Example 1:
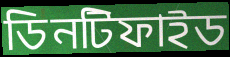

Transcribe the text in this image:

ডিনটিফাইড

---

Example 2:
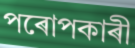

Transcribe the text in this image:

পৰোপকাৰী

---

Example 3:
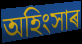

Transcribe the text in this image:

অহিংসাৰ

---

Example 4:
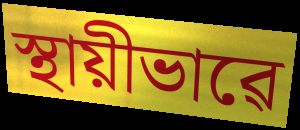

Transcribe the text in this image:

স্থায়ীভাৱে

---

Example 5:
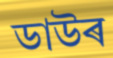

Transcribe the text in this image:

ডাউৰ